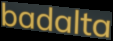
badalta